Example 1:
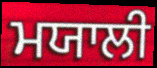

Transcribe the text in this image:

ਮਯਾਲੀ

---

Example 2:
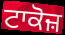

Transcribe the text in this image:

ਟਾਕੋਜ਼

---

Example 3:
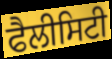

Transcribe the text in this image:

ਫੈਲੀਸਿਟੀ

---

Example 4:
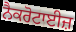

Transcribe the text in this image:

ਨੈਕਰੋਟਾਈਜ਼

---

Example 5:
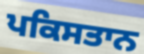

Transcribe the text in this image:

ਪਕਿਸਤਾਨ